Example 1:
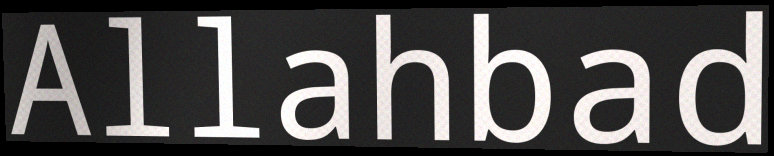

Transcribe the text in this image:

Allahbad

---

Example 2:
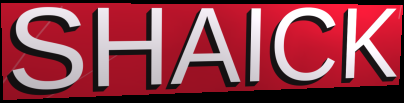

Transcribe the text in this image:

SHAICK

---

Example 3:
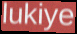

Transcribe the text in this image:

lukiye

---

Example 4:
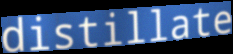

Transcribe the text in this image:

distillate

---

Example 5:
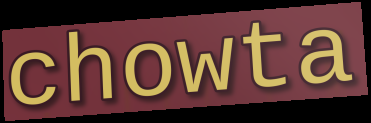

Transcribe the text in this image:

chowta